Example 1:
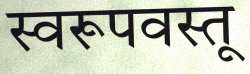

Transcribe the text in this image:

स्वरूपवस्तू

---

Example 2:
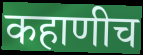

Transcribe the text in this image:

कहाणीच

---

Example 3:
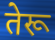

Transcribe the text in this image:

तेरू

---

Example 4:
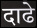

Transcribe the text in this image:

दाढे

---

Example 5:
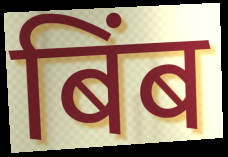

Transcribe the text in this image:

बिंब